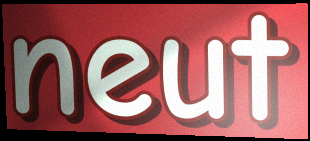
neut